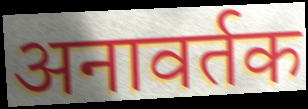
अनावर्तक